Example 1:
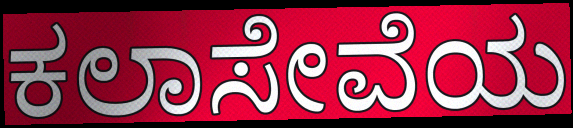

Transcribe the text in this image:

ಕಲಾಸೇವೆಯ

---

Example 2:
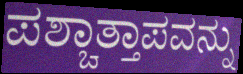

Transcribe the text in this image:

ಪಶ್ಚಾತ್ತಾಪವನ್ನು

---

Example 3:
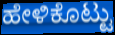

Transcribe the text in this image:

ಹೇಳಿಕೊಟ್ಟು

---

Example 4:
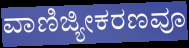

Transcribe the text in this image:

ವಾಣಿಜ್ಯೀಕರಣವೂ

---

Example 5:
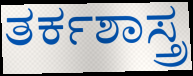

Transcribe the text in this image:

ತರ್ಕಶಾಸ್ತ್ರ